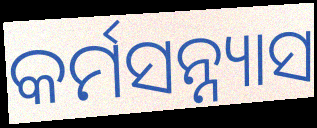
କର୍ମସନ୍ନ୍ୟାସ